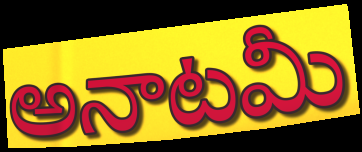
అనాటమీ